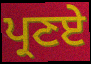
ਪ੍ਰਣਏ